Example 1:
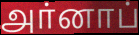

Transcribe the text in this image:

அர்னாப்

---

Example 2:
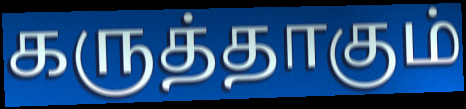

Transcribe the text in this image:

கருத்தாகும்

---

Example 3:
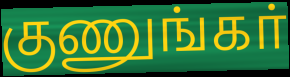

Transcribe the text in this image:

குணுங்கர்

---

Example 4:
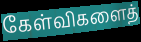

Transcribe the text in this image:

கேள்விகளைத்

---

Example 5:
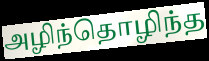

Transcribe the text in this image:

அழிந்தொழிந்த